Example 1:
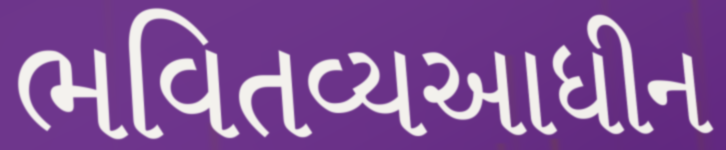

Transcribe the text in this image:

ભવિતવ્યઆધીન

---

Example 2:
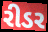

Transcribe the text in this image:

રીડર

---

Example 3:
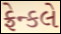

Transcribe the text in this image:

ફ્રેન્કલે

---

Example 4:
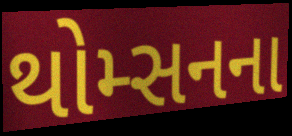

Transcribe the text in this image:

થોમ્સનના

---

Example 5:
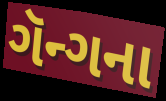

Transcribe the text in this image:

ગૅન્ગના